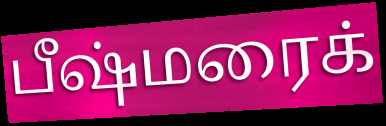
பீஷ்மரைக்